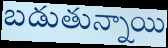
బడుతున్నాయి